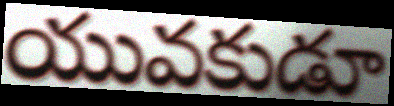
యువకుడూ